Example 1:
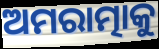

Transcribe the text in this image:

ଅମରାତ୍ମାକୁ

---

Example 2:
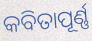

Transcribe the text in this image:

କବିତାପୂର୍ଣ୍ଣ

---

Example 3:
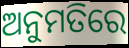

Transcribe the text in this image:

ଅନୁମତିରେ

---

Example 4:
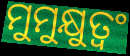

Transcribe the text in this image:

ମୁମୁକ୍ଷୁତ୍ୱଂ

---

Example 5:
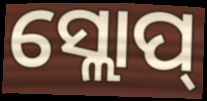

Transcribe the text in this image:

ସ୍ଲୋପ୍